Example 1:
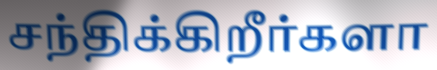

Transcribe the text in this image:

சந்திக்கிறீர்களா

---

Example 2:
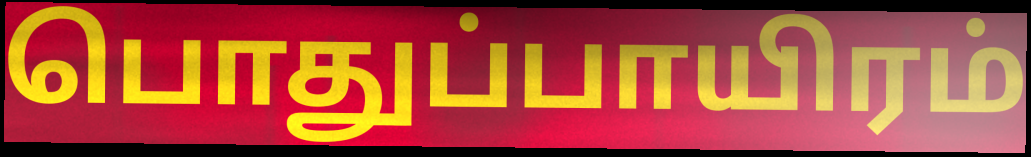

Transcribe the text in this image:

பொதுப்பாயிரம்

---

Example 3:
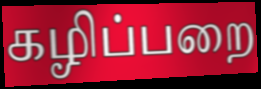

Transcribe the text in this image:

கழிப்பறை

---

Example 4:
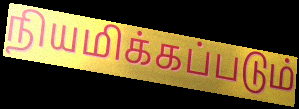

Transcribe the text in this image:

நியமிக்கப்படும்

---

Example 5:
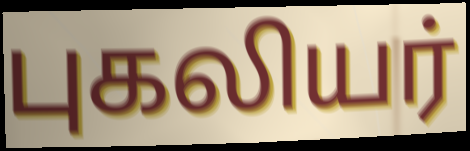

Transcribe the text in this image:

புகலியர்